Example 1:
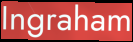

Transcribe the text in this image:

Ingraham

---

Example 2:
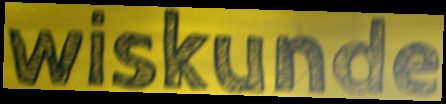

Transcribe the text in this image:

wiskunde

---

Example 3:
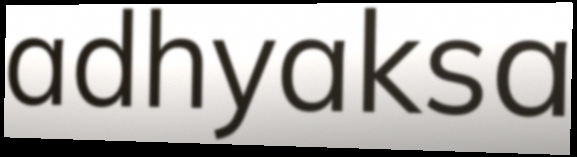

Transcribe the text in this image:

adhyaksa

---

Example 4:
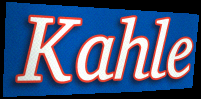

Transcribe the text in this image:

Kahle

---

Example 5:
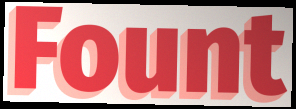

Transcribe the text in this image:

Fount